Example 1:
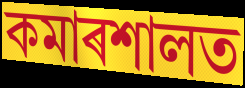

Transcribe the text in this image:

কমাৰশালত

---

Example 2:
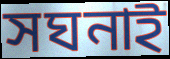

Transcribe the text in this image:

সঘনাই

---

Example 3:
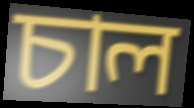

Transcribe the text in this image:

চাল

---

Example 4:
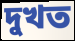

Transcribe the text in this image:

দুখত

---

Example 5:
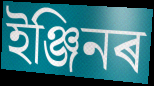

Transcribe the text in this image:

ইঞ্জিনৰ